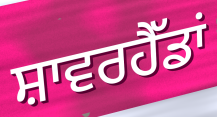
ਸ਼ਾਵਰਹੈੱਡਾਂ